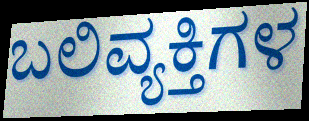
ಬಲಿವ್ಯಕ್ತಿಗಳ